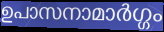
ഉപാസനാമാർഗ്ഗം